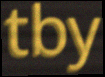
tby